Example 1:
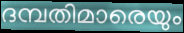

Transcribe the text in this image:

ദമ്പതിമാരെയും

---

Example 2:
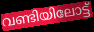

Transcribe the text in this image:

വണ്ടിയിലോട്ട്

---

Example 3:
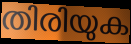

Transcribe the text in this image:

തിരിയുക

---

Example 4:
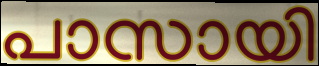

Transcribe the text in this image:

പാസായി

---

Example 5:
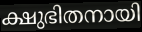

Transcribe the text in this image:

ക്ഷുഭിതനായി